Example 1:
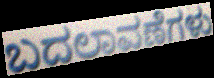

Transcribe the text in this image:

ಬದಲಾವಣೆಗಳು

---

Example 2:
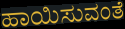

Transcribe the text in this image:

ಹಾಯಿಸುವಂತೆ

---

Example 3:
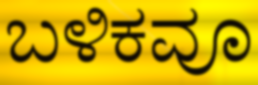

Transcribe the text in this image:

ಬಳಿಕವೂ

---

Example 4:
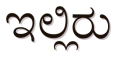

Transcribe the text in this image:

ಇಲ್ಲಿರು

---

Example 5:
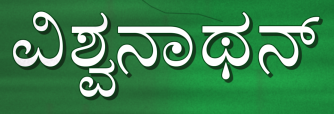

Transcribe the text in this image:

ವಿಶ್ವನಾಥನ್